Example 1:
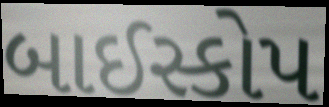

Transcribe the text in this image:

બાઈસ્કોપ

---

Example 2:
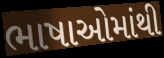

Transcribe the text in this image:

ભાષાઓમાંથી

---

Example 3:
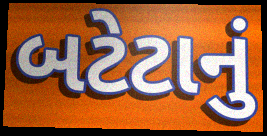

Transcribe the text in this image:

બટેટાનું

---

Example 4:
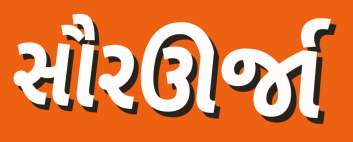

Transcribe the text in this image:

સૌરઊર્જા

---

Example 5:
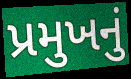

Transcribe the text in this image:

પ્રમુખનું